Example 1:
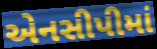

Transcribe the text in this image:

એનસીપીમાં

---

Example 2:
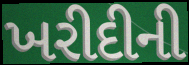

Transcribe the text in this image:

ખરીદીની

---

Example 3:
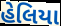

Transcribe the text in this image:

હેલિયા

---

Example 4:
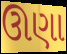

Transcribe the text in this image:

ઊણા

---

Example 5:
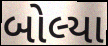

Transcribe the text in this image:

બોલ્યા